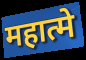
महात्मे